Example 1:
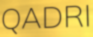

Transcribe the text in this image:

QADRI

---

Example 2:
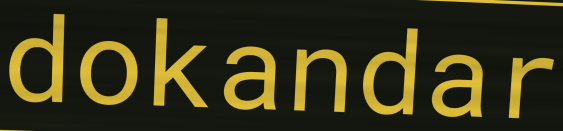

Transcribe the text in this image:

dokandar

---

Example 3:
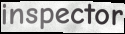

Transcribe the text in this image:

inspector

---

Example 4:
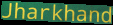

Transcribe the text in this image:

Jharkhand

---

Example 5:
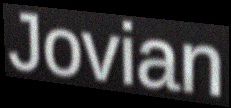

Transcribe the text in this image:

Jovian